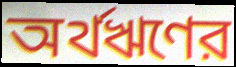
অর্থঋণের